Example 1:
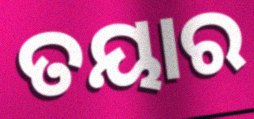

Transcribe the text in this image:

ତୟାର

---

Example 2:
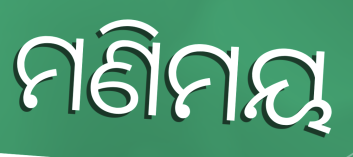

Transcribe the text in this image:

ମଣିମୟ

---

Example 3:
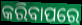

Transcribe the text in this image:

କରିବାପରେ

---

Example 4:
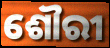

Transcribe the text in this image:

ଶୌରୀ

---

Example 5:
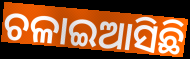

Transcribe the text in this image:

ଚଳାଇଆସିଛି